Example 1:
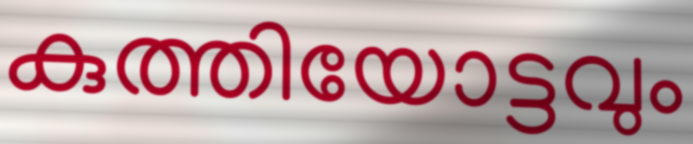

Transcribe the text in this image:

കുത്തിയോട്ടവും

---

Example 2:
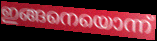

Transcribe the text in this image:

ഇങ്ങനെയൊന്ന്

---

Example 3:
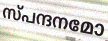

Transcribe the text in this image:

സ്പന്ദനമോ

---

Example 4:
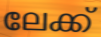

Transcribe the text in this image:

ലേക്ക്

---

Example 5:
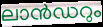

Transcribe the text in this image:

ലാൻഡറും